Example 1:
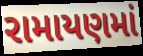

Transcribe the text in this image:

રામાયણમાં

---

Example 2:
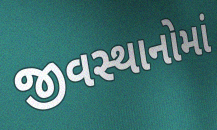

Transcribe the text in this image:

જીવસ્થાનોમાં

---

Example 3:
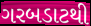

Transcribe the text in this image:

ગરબડાટથી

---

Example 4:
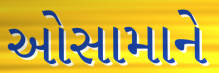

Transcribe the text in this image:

ઓસામાને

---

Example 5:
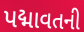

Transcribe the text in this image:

પદ્માવતની